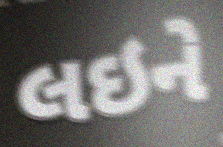
લઇને